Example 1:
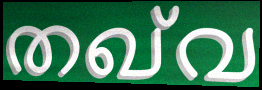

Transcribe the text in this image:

തഖ്‌വ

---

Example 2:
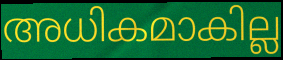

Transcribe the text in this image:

അധികമാകില്ല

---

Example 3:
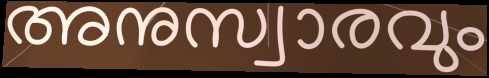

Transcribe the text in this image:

അനുസ്വാരവും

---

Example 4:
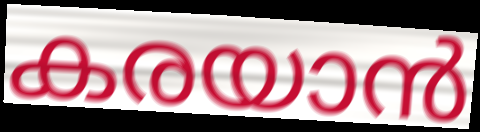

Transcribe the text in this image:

കരയാൻ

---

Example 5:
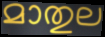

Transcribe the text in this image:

മാതുല